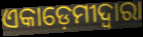
ଏକାଡ଼େମୀଦ୍ଵାରା